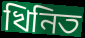
খিনিত